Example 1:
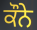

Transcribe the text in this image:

ਕੌਨੇ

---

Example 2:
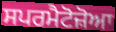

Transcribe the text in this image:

ਸਪਰਮੈਟੋਜ਼ੋਆ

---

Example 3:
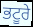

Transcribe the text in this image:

ਭਟੂਰੇ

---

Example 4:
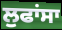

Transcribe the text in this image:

ਲੁਫਾਂਸਾ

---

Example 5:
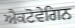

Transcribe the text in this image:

ਐਕਟੋਵੇਗਿਨ